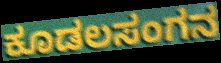
ಕೂಡಲಸಂಗನ